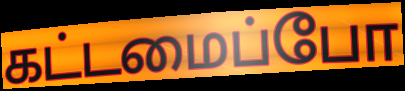
கட்டமைப்போ